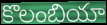
కొలంబియా